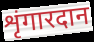
शृंगारदान